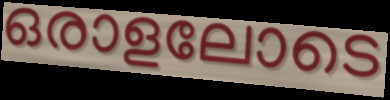
ഒരാളലോടെ